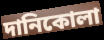
দানিকোলা